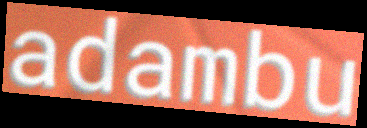
adambu